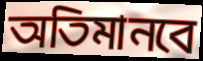
অতিমানবে